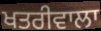
ਖਤਰੀਵਾਲਾ